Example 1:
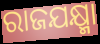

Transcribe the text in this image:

ରାଜଯକ୍ଷ୍ମା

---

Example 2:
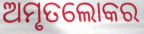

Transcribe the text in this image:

ଅମୃତଲୋକର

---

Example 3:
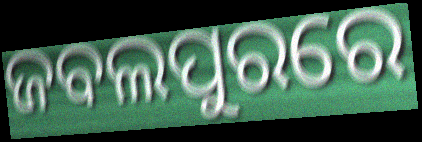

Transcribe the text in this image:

ଜବଲପୁରରେ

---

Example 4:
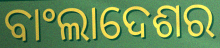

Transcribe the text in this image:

ବାଂଲାଦେଶର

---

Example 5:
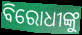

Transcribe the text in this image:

ବିରୋଧୀଙ୍କୁ